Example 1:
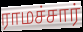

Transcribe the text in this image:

ராமச்சார்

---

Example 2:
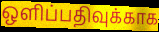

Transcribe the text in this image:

ஒளிப்பதிவுக்காக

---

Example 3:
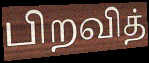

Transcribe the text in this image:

பிறவித்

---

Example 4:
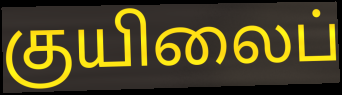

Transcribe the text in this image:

குயிலைப்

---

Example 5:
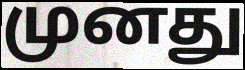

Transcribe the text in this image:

முனது